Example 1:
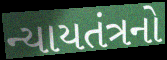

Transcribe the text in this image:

ન્યાયતંત્રનો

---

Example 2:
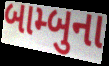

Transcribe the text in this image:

બામ્બુના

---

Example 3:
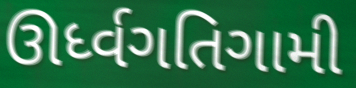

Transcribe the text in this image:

ઊર્ધ્વગતિગામી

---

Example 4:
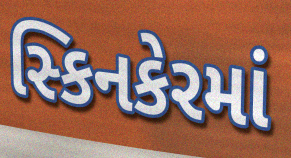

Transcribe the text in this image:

સ્કિનકેરમાં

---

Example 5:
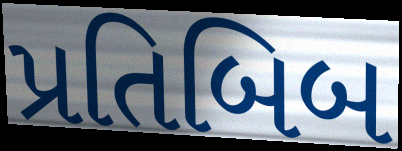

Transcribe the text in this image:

પ્રતિબિબ